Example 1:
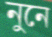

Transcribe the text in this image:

নুনে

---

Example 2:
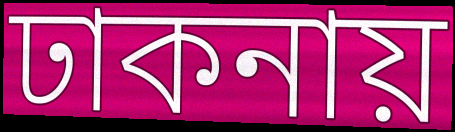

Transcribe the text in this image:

ঢাকনায়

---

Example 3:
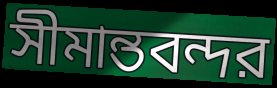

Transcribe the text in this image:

সীমান্তবন্দর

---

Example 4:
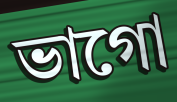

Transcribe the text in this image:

ভাগো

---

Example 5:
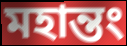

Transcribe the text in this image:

মহান্তং